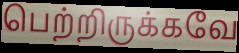
பெற்றிருக்கவே